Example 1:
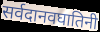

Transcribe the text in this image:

सर्वदानवघातिनी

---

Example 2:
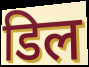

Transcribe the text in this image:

डिल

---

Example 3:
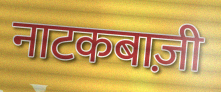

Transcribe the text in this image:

नाटकबाज़ी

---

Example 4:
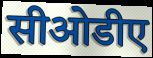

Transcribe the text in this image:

सीओडीए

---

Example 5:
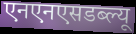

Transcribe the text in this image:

एनएनएसडब्ल्यू